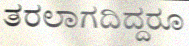
ತರಲಾಗದಿದ್ದರೂ